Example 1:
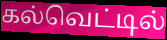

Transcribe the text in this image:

கல்வெட்டில்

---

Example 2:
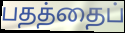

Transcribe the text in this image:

பதத்தைப்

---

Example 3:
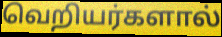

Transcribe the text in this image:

வெறியர்களால்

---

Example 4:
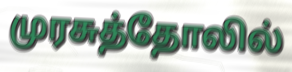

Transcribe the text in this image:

முரசுத்தோலில்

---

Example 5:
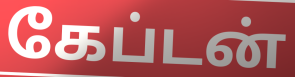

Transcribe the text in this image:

கேப்டன்